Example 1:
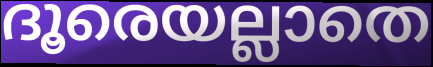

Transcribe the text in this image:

ദൂരെയല്ലാതെ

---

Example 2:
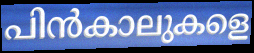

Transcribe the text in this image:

പിൻകാലുകളെ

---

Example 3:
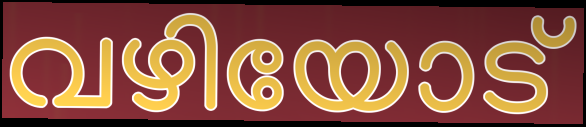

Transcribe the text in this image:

വഴിയോട്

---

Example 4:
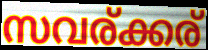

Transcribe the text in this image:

സവര്ക്കര്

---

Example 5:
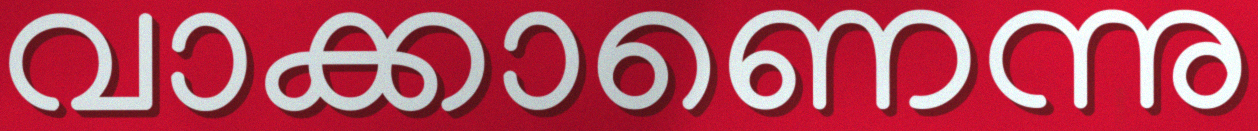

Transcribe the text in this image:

വാക്കാണെന്നു